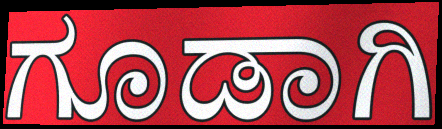
ಗೂಡಾಗಿ